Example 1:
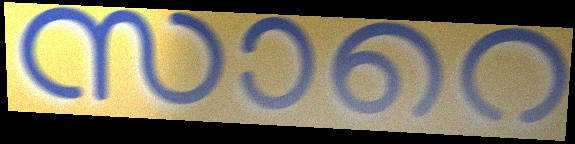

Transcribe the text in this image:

സാറെ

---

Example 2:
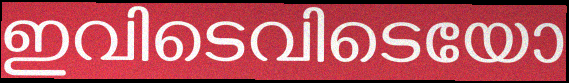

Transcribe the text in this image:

ഇവിടെവിടെയോ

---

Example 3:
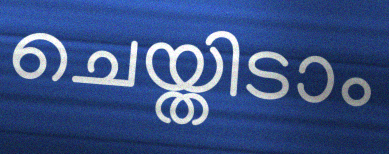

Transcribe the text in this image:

ചെയ്തിടാം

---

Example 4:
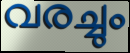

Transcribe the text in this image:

വരച്ചും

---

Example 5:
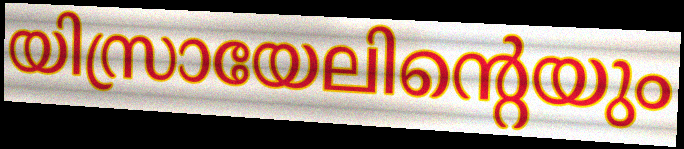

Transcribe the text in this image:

യിസ്രായേലിന്റെയും